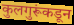
कुलगुरूंकडून